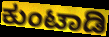
ಕುಂಟಾಡಿ